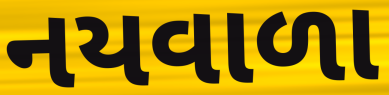
નયવાળા